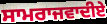
ਸਾਮਰਾਜਵਾਦੀਏ